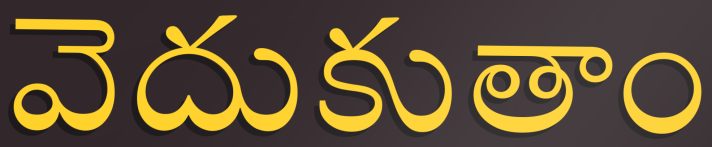
వెదుకుతాం